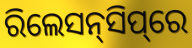
ରିଲେସନ୍‌ସିପ୍‌ରେ